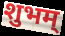
शुभम्